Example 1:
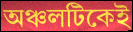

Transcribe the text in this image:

অঞ্চলটিকেই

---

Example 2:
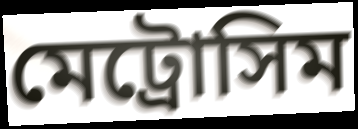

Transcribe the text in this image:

মেট্রোসিম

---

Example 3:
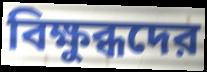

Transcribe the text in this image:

বিক্ষুব্ধদের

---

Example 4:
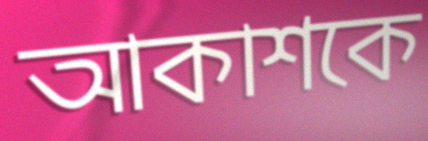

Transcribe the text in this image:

আকাশকে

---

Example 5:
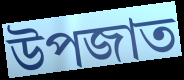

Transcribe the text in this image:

উপজাত